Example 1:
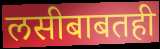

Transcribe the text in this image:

लसीबाबतही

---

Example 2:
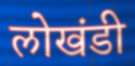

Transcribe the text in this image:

लोखंडी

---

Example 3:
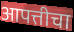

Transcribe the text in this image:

आपत्तीचा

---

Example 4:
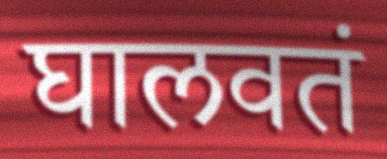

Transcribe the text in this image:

घालवतं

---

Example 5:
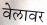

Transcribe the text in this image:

वेलावर